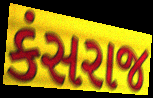
કંસરાજ